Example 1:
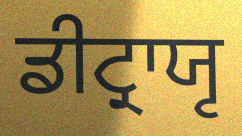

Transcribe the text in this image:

ਡੀਟ੍ਰਾਯ੍ਟ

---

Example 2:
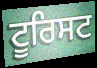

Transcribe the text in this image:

ਟੂਰਿਸਟ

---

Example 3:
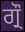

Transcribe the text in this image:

ਗ੍ਰੌ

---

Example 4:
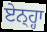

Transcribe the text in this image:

ਏਨ੍ਹ੍ਹਾ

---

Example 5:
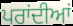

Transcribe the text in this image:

ਪਰਾਂਦੀਆਂ